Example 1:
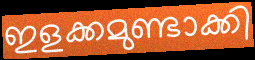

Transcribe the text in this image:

ഇളക്കമുണ്ടാക്കി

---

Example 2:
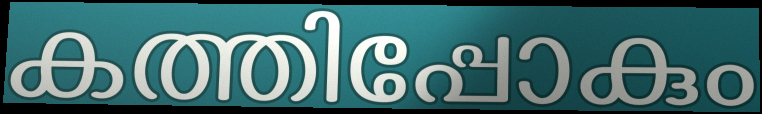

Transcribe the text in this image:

കത്തിപ്പോകും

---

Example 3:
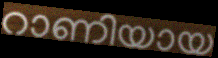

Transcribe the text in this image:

റാണിയായ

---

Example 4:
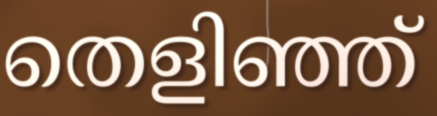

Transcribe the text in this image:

തെളിഞ്ഞ്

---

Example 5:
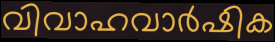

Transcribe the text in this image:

വിവാഹവാർഷിക